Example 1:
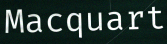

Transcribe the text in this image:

Macquart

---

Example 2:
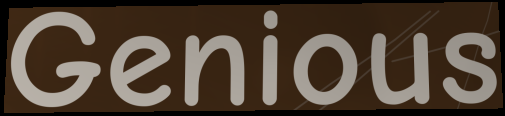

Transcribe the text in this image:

Genious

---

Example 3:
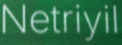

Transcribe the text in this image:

Netriyil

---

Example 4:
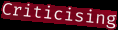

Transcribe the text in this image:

Criticising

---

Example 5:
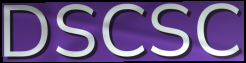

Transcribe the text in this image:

DSCSC